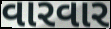
વારવાર